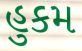
હુકમ